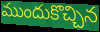
ముందుకొచ్చిన